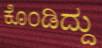
ಕೊಂಡಿದ್ದು